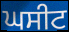
ਘਸੀਟ